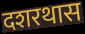
दशरथास